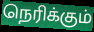
நெரிக்கும்